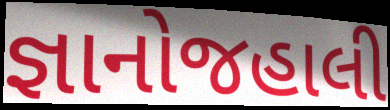
જ્ઞાનોજહાલી